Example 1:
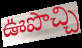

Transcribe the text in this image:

ఊపొచ్చి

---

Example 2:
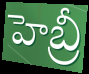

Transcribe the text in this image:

హెబ్రీ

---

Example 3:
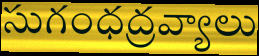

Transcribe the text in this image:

సుగంధద్రవ్యాలు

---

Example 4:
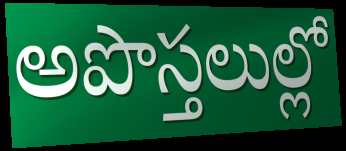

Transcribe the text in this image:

అపొస్తలుల్లో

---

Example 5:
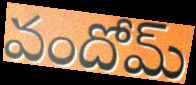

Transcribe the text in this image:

వందోమ్